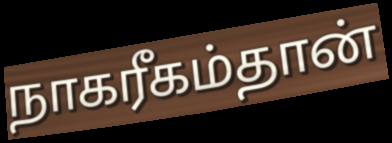
நாகரீகம்தான்